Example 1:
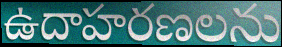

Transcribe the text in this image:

ఉదాహరణలను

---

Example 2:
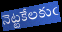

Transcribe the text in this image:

నెట్టకేలకుఁ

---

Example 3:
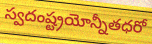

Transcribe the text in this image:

స్వదంష్ట్రయోన్నీతధరో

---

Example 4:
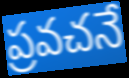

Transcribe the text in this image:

ప్రవచనే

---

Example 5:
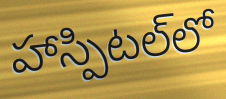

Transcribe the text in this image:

హాస్పిటల్‌లో